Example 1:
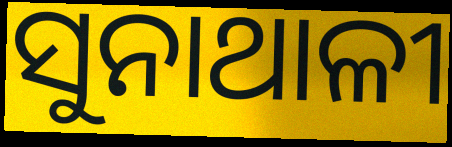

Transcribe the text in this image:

ସୁନାଥାଳୀ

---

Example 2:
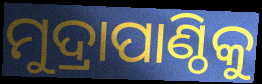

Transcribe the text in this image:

ମୁଦ୍ରାପାଣ୍ଠିକୁ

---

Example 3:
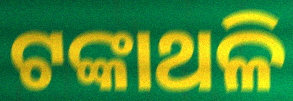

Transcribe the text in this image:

ଟଙ୍କାଥଳି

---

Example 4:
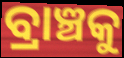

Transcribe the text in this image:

ବ୍ରାଞ୍ଚକୁ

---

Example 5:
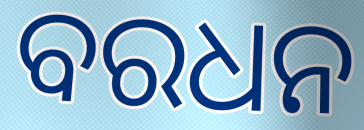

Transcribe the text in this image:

ବରଧନ